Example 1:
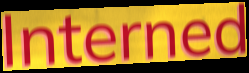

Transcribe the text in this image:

Interned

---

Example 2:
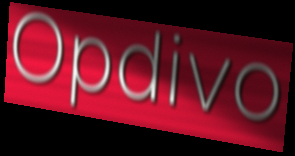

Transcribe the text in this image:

Opdivo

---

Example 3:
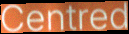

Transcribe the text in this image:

Centred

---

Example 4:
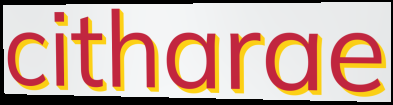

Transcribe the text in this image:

citharae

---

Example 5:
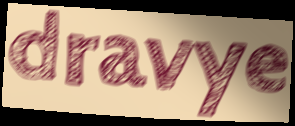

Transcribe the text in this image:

dravye